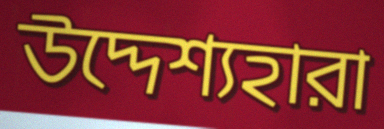
উদ্দেশ্যহারা